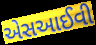
એસઆઈવી